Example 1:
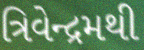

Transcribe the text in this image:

ત્રિવેન્દ્રમથી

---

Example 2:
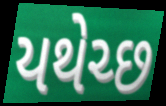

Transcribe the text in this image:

યથેચ્છ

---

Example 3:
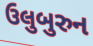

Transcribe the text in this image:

ઉલુબુરુન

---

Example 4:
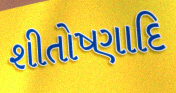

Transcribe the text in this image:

શીતોષ્ણાદિ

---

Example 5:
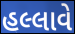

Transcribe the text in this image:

હલ્લાવે